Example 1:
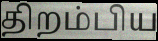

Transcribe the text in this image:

திறம்பிய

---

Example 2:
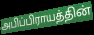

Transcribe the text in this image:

அபிப்பிராயத்தின்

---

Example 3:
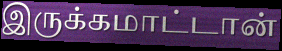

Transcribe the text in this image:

இருக்கமாட்டான்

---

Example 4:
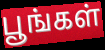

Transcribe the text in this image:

பூங்கள்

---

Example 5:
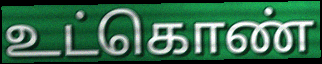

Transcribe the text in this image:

உட்கொண்